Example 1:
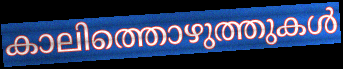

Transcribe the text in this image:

കാലിത്തൊഴുത്തുകൾ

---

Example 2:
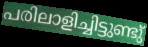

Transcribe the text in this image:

പരിലാളിച്ചിട്ടുണ്ടു്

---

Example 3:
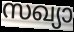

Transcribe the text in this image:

സഖ്യാ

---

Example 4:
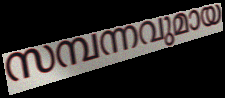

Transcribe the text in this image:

സമ്പന്നവുമായ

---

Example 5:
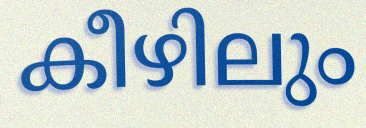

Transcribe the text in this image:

കീഴിലും